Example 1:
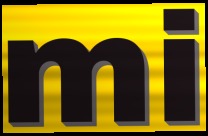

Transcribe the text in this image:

mi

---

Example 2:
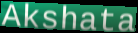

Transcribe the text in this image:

Akshata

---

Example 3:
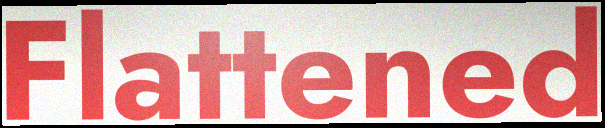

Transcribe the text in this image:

Flattened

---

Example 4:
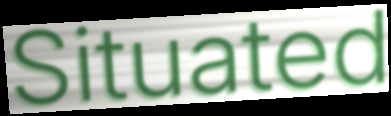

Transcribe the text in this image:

Situated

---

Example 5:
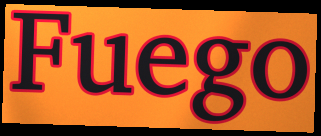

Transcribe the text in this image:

Fuego